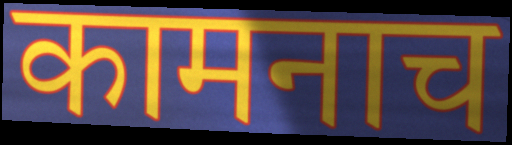
कामनाच